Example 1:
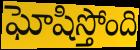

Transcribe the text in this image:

ఘోషిస్తోంది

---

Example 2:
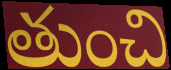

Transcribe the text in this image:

తుంచి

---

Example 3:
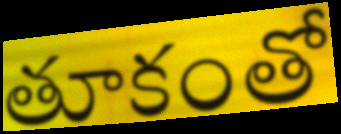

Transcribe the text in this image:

తూకంతో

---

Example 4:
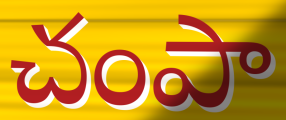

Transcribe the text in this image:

చంపా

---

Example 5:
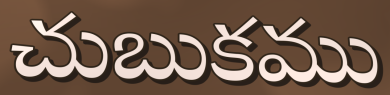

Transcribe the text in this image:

చుబుకము